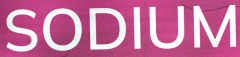
SODIUM